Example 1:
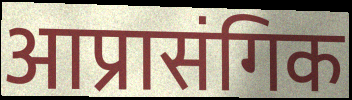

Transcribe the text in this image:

आप्रासंगिक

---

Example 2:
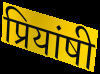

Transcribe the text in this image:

प्रियांषी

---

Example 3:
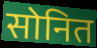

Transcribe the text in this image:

सोनित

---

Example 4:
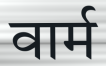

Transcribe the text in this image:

वार्म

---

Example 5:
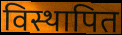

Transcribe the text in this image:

विस्थापित